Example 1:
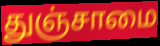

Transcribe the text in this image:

துஞ்சாமை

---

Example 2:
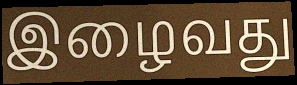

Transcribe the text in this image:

இழைவது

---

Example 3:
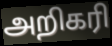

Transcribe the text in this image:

அறிகரி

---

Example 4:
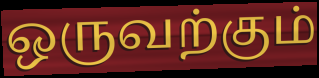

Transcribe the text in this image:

ஒருவற்கும்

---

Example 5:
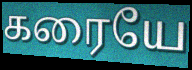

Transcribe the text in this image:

கரையே